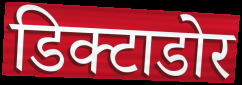
डिक्टाडोर